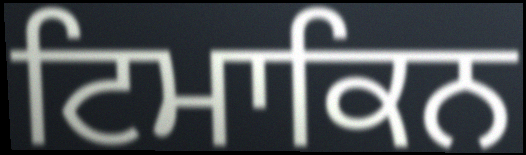
ਟਿਮਾਕਿਨ